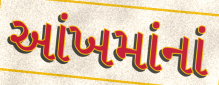
આંખમાંનાં